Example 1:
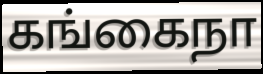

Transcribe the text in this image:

கங்கைநா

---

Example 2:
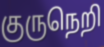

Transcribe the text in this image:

குருநெறி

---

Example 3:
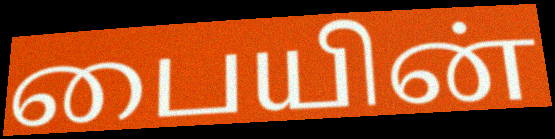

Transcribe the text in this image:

பையின்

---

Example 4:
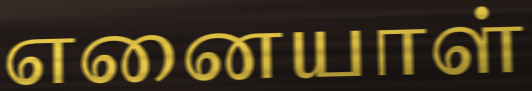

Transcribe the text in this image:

எனையாள்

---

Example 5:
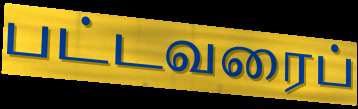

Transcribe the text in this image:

பட்டவரைப்